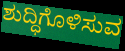
ಶುದ್ಧಿಗೊಳಿಸುವ